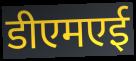
डीएमएई